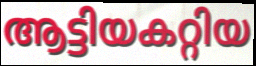
ആട്ടിയകറ്റിയ